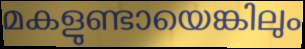
മകളുണ്ടായെങ്കിലും